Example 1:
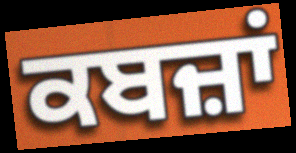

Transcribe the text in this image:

ਕਬਜ਼ਾਂ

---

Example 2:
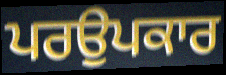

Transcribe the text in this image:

ਪਰਉਪਕਾਰ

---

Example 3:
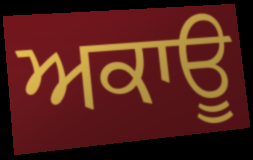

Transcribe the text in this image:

ਅਕਾਊ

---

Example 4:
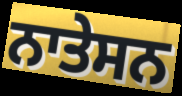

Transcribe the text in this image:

ਨਾਤੇਸਨ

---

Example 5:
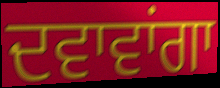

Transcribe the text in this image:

ਦਵਾਵਾਂਗਾ